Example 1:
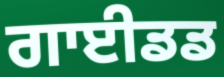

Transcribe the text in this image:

ਗਾਈਡਡ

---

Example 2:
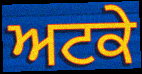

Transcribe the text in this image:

ਅਟਕੇ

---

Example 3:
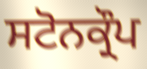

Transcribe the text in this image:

ਸਟੋਨਕ੍ਰੌਪ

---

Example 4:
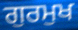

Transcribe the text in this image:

ਗੁਰਮੁਖ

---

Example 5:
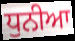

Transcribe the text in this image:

ਧੁਨੀਆ